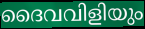
ദൈവവിളിയും